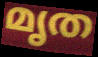
മൃത